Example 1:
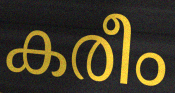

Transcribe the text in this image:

കരീം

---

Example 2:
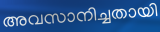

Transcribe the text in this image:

അവസാനിച്ചതായി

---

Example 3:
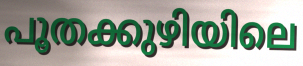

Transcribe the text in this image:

പൂതക്കുഴിയിലെ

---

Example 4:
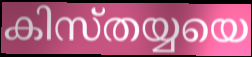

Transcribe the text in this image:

കിസ്തയ്യയെ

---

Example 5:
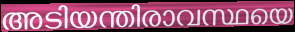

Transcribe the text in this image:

അടിയന്തിരാവസ്ഥയെ